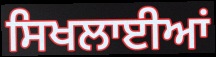
ਸਿਖਲਾਈਆਂ